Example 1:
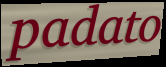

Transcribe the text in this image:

padato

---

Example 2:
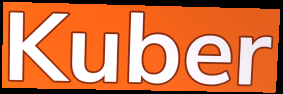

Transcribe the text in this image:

Kuber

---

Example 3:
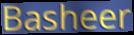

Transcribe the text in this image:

Basheer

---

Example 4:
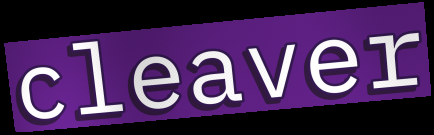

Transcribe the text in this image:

cleaver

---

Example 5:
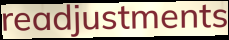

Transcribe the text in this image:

readjustments